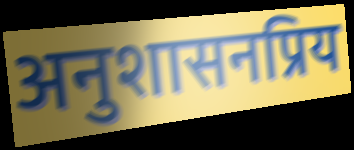
अनुशासनप्रिय